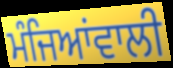
ਮੰਜਿਆਂਵਾਲੀ